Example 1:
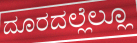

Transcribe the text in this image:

ದೂರದಲ್ಲೆಲ್ಲೂ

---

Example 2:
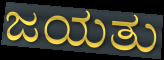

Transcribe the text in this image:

ಜಯತು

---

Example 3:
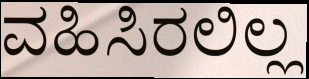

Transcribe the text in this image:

ವಹಿಸಿರಲಿಲ್ಲ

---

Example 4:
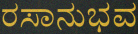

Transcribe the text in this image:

ರಸಾನುಭವ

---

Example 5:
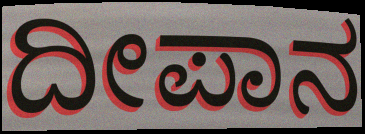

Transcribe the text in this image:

ದೀಪಾನ